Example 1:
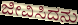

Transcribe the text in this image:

ಜೀವಿಸಿದನು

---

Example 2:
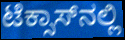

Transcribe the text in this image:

ಟೆಕ್ಸಾಸ್‌ನಲ್ಲಿ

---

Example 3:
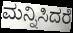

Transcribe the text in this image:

ಮನ್ನಿಸಿದರೆ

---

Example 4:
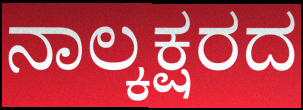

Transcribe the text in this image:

ನಾಲ್ಕಕ್ಷರದ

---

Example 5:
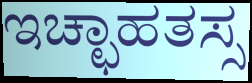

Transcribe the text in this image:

ಇಚ್ಛಾಹತಸ್ಸ